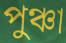
পুঞ্চা